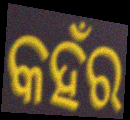
କହଁର